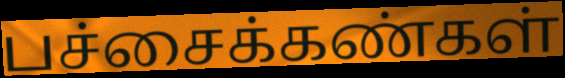
பச்சைக்கண்கள்